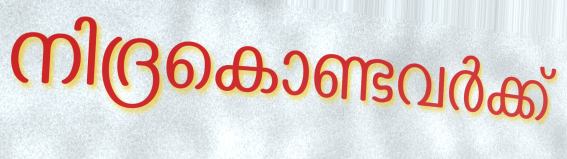
നിദ്രകൊണ്ടവർക്ക്